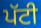
ਪੱਟੀ